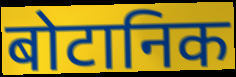
बोटानिक